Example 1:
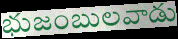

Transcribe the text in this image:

భుజంబులవాడు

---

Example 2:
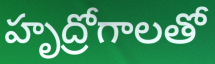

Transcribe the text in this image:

హృద్రోగాలతో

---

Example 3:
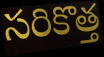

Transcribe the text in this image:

సరికొత్త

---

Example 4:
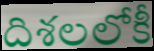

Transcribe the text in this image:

దిశలలోకీ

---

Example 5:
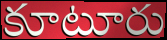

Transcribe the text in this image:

కూటూరు